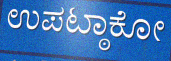
ಉಪಟ್ಠಾಕೋ